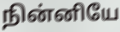
நின்னியே